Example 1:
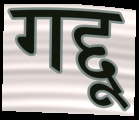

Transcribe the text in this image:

गद्दू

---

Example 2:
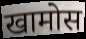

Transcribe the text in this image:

खामोस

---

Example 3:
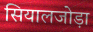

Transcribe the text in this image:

सियालजोड़ा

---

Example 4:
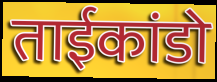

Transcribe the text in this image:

ताईकांडो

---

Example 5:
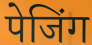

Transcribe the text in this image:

पेजिंग